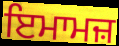
ਇਮਾਮਜ਼